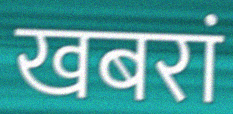
खबरां